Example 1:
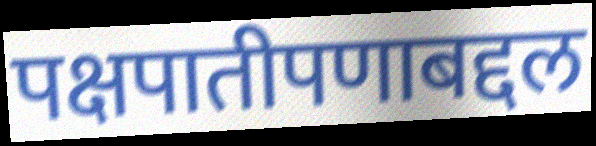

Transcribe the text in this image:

पक्षपातीपणाबद्दल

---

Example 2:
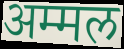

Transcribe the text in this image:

अम्मल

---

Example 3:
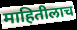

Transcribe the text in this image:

माहितीलाच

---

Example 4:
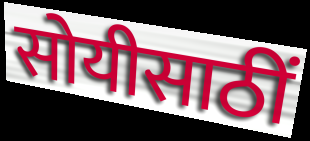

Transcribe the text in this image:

सोयीसाठीं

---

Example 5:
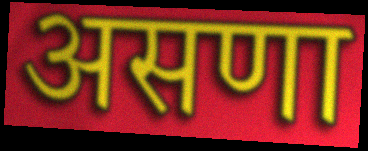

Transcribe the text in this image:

असणा